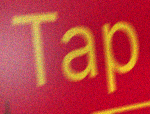
Tap